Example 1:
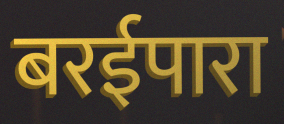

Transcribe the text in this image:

बरईपारा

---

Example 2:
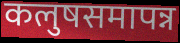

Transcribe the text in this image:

कलुषसमापन्न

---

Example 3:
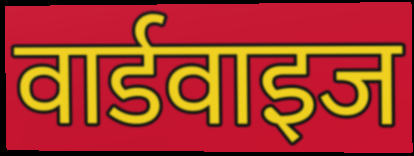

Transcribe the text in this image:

वार्डवाइज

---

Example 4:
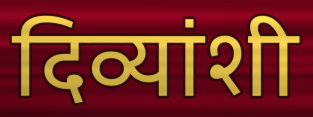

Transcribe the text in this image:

दिव्यांशी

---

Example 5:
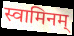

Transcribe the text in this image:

स्वामिनम्